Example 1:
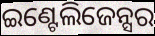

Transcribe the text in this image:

ଇଣ୍ଟେଲିଜେନ୍ସର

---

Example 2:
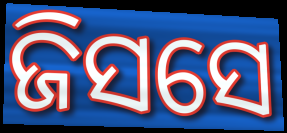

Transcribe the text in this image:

ଜିସସେ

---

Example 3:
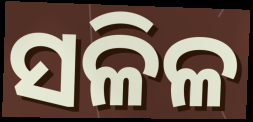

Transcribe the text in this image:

ସଳିଳ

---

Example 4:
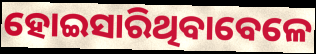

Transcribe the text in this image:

ହୋଇସାରିଥିବାବେଳେ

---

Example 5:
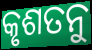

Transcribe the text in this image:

କୃଶତନୁ